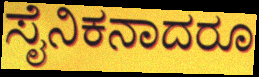
ಸೈನಿಕನಾದರೂ